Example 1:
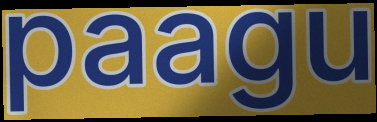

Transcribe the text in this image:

paagu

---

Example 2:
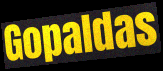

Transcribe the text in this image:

Gopaldas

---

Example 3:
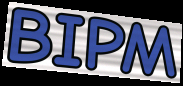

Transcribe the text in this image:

BIPM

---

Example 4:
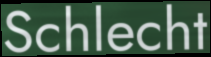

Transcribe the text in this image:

Schlecht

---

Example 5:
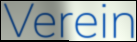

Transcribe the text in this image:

Verein